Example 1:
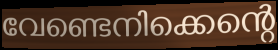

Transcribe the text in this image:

വേണ്ടെനിക്കെന്റെ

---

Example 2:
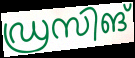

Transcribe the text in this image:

ഡ്രസിങ്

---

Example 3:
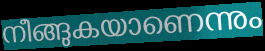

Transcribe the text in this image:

നീങ്ങുകയാണെന്നും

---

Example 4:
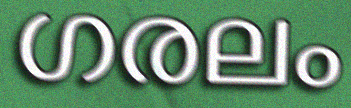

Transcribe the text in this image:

ഗരലം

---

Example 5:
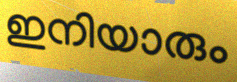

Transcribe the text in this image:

ഇനിയാരും